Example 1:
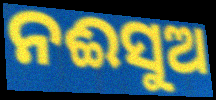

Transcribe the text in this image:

ନଈସୁଅ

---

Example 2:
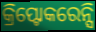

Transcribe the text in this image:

କ୍ରିପ୍ଟୋକରେନ୍ସି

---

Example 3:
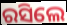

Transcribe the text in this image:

ରସିଲେ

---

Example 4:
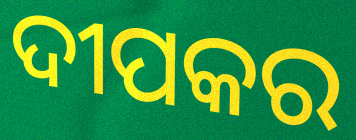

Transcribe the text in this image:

ଦୀପକର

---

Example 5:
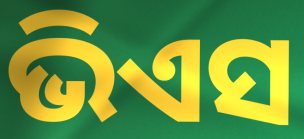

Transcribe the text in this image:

ଭିଏସ